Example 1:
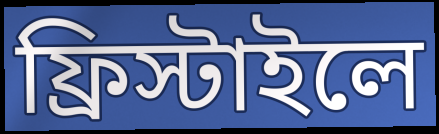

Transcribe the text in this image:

ফ্রিস্টাইলে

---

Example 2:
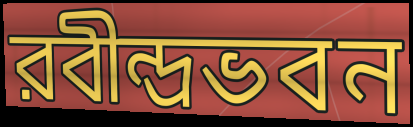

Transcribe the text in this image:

রবীন্দ্রভবন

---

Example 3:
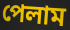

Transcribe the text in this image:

পেলাম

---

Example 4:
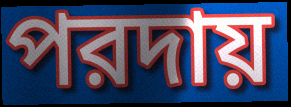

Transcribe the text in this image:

পরদায়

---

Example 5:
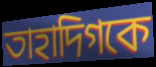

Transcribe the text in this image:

তাহাদিগকে